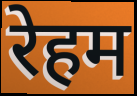
रेहम